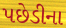
પછેડીના